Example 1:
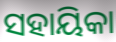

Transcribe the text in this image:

ସହାୟିକା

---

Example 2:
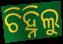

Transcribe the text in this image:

ଚିହ୍ନିଲୁ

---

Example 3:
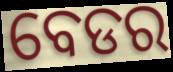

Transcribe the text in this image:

ବେଡର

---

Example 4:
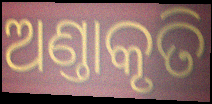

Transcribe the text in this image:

ଅଣ୍ତାକୃତି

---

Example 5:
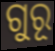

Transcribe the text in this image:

ଗୁରୂ